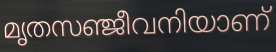
മൃതസഞ്ജീവനിയാണ്